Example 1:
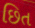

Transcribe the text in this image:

છિત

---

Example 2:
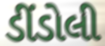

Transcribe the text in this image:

ડીંડોલી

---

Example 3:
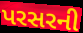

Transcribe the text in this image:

પરસરની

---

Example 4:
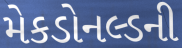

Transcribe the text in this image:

મેકડોનલ્ડની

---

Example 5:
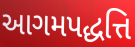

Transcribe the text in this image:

આગમપદ્ધત્તિ